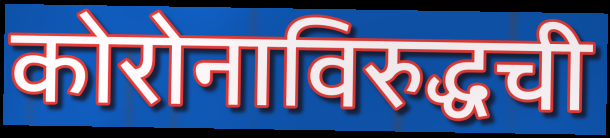
कोरोनाविरुद्धची